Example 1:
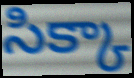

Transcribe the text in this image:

సిక్కా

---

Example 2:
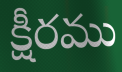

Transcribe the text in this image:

క్షీరము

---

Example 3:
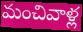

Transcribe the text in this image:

మంచివాళ్ల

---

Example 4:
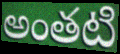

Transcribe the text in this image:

అంతటి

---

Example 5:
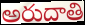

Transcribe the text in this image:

అరుదాతి